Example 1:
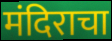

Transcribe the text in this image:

मंदिराचा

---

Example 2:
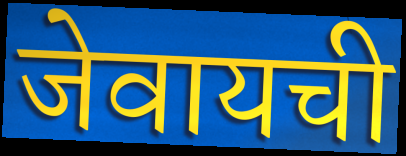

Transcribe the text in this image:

जेवायची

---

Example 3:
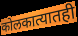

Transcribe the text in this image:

कोलकात्यातही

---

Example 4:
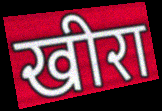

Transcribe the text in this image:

खीरा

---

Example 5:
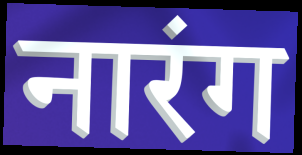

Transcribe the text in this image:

नारंग